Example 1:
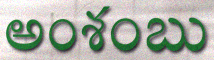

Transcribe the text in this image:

అంశంబు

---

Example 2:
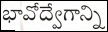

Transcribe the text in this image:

భావోద్వేగాన్ని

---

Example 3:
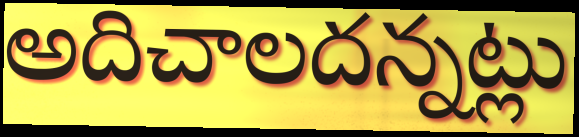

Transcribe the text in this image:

అదిచాలదన్నట్లు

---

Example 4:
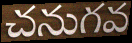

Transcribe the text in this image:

చనుగవ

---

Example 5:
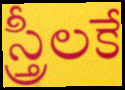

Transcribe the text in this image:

స్త్రీలకే